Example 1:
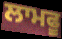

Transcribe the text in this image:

ਲਾਮਫੂ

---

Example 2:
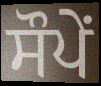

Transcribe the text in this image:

ਸੌਪੇਂ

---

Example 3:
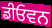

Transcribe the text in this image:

ਡੀਓਵਨ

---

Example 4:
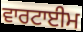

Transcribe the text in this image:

ਵਾਰਟਾਈਮ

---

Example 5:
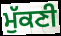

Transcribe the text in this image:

ਮੁੱਕਣੀ